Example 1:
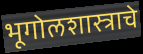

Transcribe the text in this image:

भूगोलशास्त्राचे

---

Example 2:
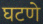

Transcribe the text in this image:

घटणे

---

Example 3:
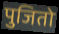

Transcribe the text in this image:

पुजितो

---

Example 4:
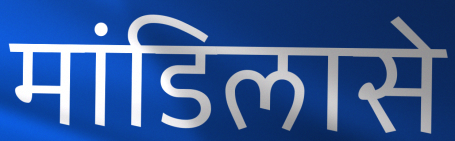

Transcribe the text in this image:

मांडिलासे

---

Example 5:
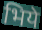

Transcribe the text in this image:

भिये